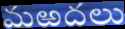
మఱదలు